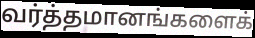
வர்த்தமானங்களைக்